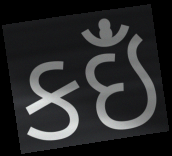
કઇઁં